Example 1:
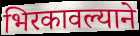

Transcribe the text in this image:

भिरकावल्याने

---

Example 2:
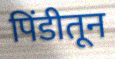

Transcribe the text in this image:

पिंडीतून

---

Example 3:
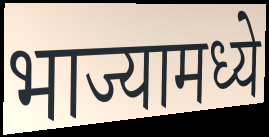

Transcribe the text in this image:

भाज्यामध्ये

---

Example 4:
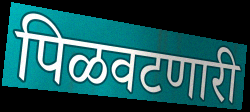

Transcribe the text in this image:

पिळवटणारी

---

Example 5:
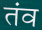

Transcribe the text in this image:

तंव